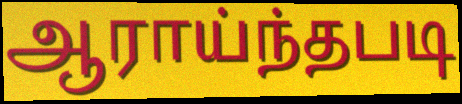
ஆராய்ந்தபடி